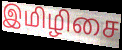
இமிழிசை